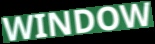
WINDOW